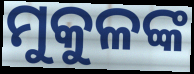
ମୁକୁଳଙ୍କ